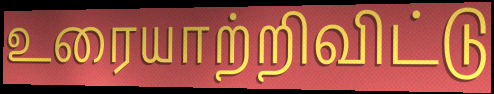
உரையாற்றிவிட்டு